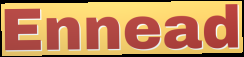
Ennead